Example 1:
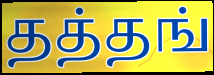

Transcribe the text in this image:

தத்தங்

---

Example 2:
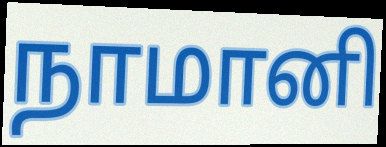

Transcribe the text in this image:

நாமானி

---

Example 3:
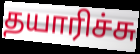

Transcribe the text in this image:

தயாரிச்சு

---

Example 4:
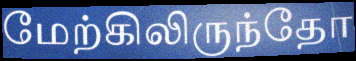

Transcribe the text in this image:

மேற்கிலிருந்தோ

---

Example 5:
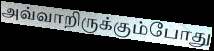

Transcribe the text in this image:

அவ்வாறிருக்கும்போது